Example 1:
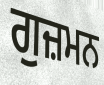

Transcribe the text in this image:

ਗੁਜ਼ਮਨ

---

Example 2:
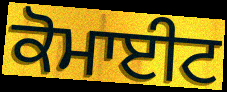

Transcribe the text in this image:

ਕੋਮਾਈਟ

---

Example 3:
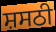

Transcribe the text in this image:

ਸ਼ਸਠੀ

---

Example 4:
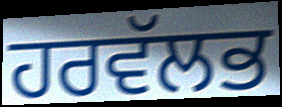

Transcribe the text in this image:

ਹਰਵੱਲਭ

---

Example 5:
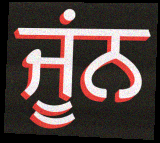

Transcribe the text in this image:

ਜੂਂਨ